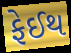
ફેઈથ